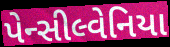
પેન્સીલ્વેનિયા